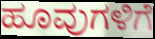
ಹೂವುಗಳಿಗೆ